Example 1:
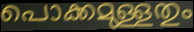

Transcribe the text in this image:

പൊക്കമുള്ളതും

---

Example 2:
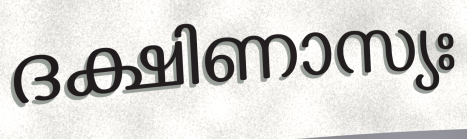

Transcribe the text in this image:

ദക്ഷിണാസ്യഃ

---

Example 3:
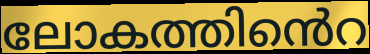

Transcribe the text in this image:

ലോകത്തിൻെറ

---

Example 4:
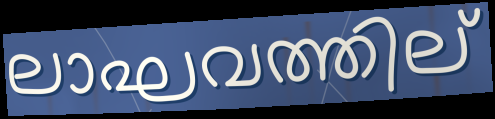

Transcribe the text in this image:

ലാഘവത്തില്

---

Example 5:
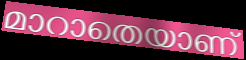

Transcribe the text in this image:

മാറാതെയാണ്